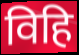
विहि